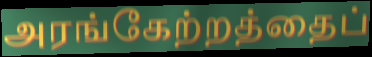
அரங்கேற்றத்தைப்